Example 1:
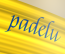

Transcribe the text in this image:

padelu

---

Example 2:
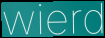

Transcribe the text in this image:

wierd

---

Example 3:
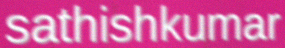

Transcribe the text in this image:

sathishkumar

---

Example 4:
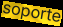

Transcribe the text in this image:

soporte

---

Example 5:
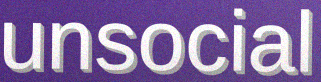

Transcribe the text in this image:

unsocial